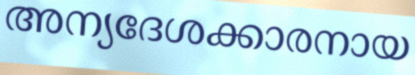
അന്യദേശക്കാരനായ